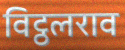
विट्ठलराव